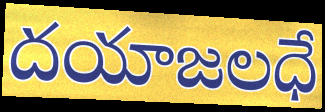
దయాజలధే